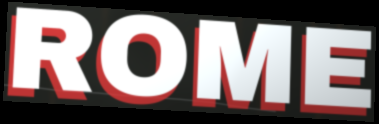
ROME